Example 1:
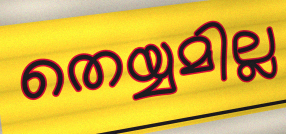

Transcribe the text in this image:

തെയ്യമില്ല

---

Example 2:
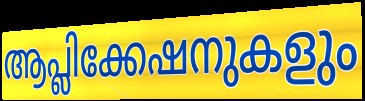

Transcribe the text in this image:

ആപ്ലിക്കേഷനുകളും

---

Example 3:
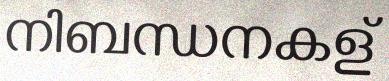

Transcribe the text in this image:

നിബന്ധനകള്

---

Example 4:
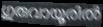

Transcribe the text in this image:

ഗുരുവായൂരിൽ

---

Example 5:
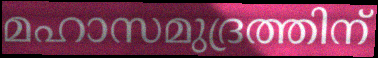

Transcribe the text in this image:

മഹാസമുദ്രത്തിന്